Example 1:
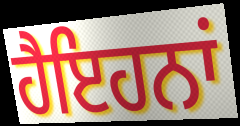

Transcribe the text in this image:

ਹੈਇਹਨਾਂ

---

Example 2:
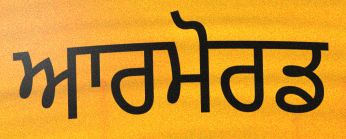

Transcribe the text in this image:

ਆਰਮੋਰਡ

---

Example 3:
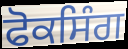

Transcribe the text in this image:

ਫੋਕਸਿੰਗ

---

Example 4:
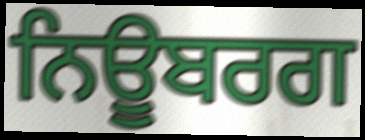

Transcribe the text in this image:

ਨਿਊਬਰਗ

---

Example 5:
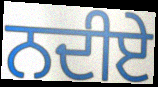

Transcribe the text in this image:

ਨਦੀਏ